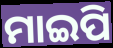
ମାଇପି